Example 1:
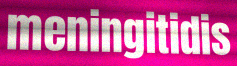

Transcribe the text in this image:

meningitidis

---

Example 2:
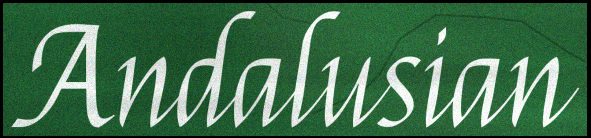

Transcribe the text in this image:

Andalusian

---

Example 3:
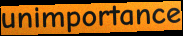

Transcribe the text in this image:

unimportance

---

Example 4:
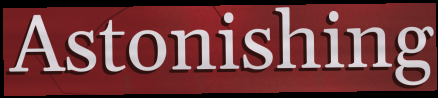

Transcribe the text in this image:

Astonishing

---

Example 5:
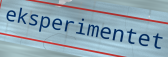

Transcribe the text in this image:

eksperimentet